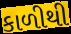
કાળીથી